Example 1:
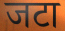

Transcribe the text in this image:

जटा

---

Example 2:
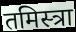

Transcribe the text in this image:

तमिस्त्रा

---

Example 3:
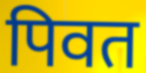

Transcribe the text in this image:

पिवत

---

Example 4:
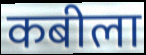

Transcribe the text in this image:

कबीला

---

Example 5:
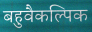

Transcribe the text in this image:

बहुवैकल्पिक